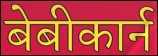
बेबीकार्न